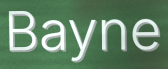
Bayne